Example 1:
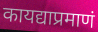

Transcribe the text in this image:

कायद्याप्रमाणं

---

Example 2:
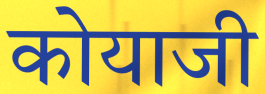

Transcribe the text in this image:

कोयाजी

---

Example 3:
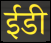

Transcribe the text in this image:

ईडी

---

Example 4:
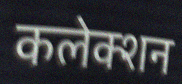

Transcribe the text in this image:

कलेक्शन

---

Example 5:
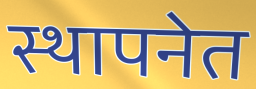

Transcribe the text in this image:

स्थापनेत